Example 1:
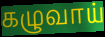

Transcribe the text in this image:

கழுவாய்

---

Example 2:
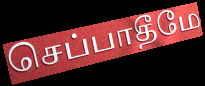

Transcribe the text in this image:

செப்பாதீமே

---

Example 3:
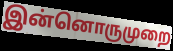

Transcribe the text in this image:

இன்னொருமுறை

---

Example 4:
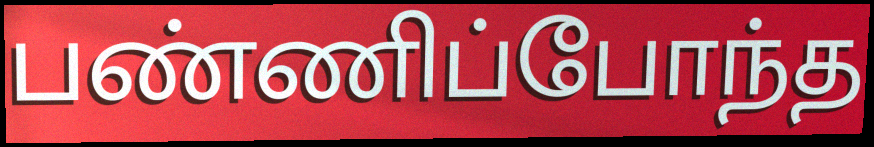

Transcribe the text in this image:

பண்ணிப்போந்த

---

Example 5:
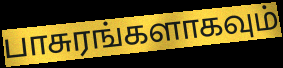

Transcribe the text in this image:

பாசுரங்களாகவும்